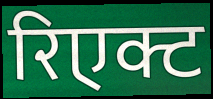
रिएक्ट